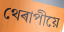
থেৰাপীয়ে